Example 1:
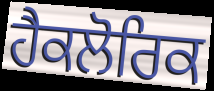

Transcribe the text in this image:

ਹੈਕਲੋਰਿਕ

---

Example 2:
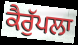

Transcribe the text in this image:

ਕੈਰੁੱਪਲਾ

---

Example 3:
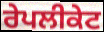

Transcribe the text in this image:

ਰੇਪਲੀਕੇਟ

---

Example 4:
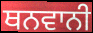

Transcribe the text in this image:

ਥਨਵਾਨੀ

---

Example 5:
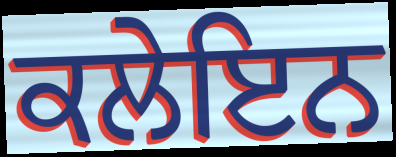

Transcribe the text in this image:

ਕਲੇਇਨ